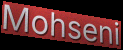
Mohseni